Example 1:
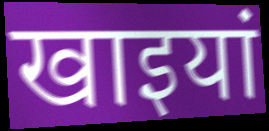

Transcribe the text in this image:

खाइयां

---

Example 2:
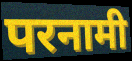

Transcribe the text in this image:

परनामी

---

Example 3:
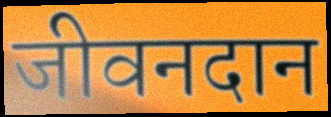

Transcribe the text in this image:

जीवनदान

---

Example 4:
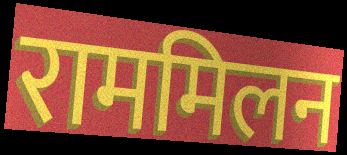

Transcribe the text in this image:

राममिलन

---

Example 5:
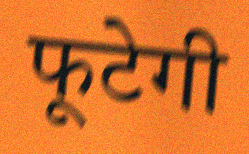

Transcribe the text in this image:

फूटेगी